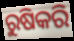
ରୁଷିକରି